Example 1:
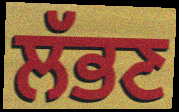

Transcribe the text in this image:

ਲੱਭਣ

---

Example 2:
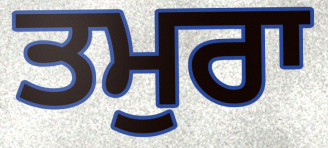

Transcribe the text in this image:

ਤਮੁਰਾ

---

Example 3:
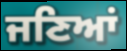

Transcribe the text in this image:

ਜਣਿਆਂ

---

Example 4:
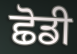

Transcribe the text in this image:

ਛੋਡੀ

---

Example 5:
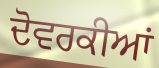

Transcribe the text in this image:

ਦੋਵਰਕੀਆਂ